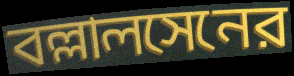
বল্লালসেনের